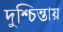
দুশ্চিন্তায়